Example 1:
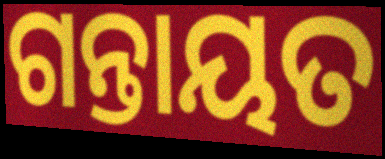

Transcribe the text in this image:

ଗନ୍ତାୟତ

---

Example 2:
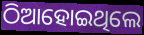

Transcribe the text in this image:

ଠିଆହୋଇଥିଲେ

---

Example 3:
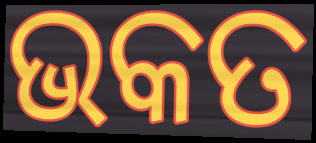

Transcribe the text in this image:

ଭକତ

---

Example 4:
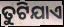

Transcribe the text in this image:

ତୁଟିଯାଏ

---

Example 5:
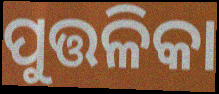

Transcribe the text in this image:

ପୁତ୍ତଳିକା